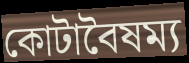
কোটাবৈষম্য